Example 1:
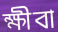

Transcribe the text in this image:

ক্ষীবা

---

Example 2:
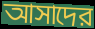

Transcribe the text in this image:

আসাদের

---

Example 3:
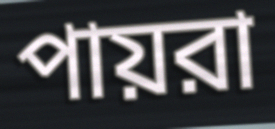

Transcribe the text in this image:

পায়রা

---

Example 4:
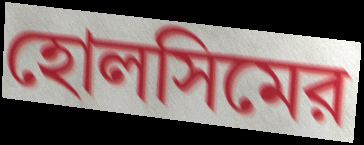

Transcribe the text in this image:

হোলসিমের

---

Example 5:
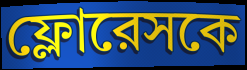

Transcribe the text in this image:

ফ্লোরেসকে